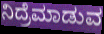
ನಿದ್ರೆಮಾಡುವ